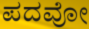
ಪದವೋ